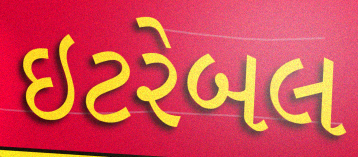
ઇટરેબલ